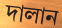
দালান